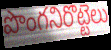
పొంగనిరొట్టెలు